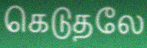
கெடுதலே